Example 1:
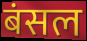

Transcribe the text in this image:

बंसल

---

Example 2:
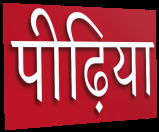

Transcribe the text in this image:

पीढ़िया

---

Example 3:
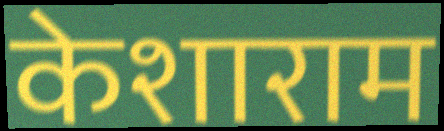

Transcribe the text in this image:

केशाराम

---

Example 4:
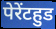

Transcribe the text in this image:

पेरेंटहुड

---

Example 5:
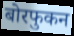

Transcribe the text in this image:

बोरफुकन